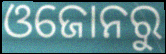
ଓଜୋନରୁ